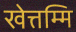
खेत्तम्मि